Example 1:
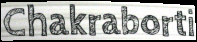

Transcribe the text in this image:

Chakraborti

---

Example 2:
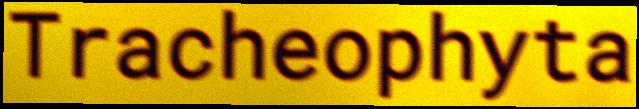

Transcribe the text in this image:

Tracheophyta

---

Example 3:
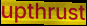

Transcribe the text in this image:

upthrust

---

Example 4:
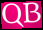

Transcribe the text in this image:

QB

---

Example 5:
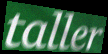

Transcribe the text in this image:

taller